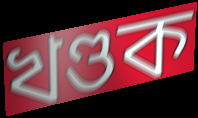
খণ্ডক